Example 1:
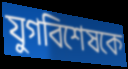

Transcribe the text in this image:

যুগবিশেষকে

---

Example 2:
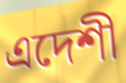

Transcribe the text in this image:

এদেশী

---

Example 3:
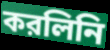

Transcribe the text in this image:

করলিনি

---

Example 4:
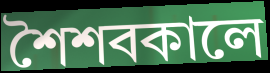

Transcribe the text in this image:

শৈশবকালে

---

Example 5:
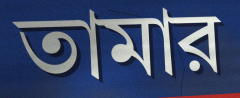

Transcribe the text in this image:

তামার